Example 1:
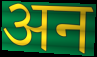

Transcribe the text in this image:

अन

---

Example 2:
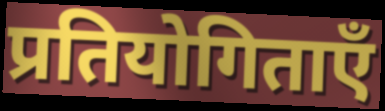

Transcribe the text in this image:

प्रतियोगिताएँ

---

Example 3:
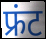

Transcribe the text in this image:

फ्रंट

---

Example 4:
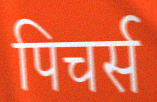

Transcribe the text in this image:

पिचर्स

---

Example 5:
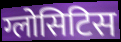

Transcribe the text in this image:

ग्लोसिटिस